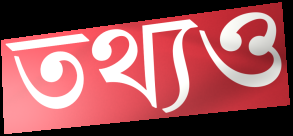
তথ্যও